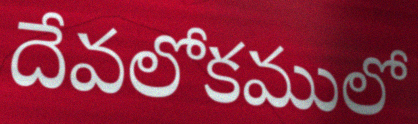
దేవలోకములో